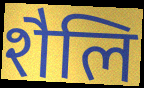
शैलि